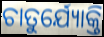
ଚାତୁର୍ଯ୍ୟୋକ୍ତି